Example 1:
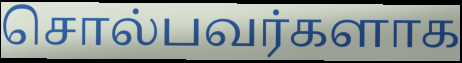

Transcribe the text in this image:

சொல்பவர்களாக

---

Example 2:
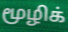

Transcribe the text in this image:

மூழிக்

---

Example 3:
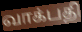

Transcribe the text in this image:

வாக்பதி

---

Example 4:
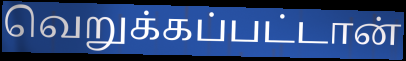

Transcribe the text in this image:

வெறுக்கப்பட்டான்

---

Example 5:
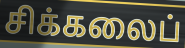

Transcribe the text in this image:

சிக்கலைப்